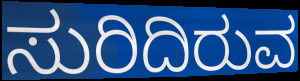
ಸುರಿದಿರುವ